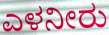
ಎಳನೀರು